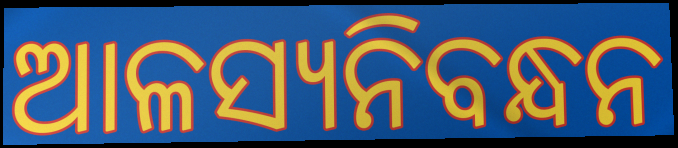
ଆଳସ୍ୟନିବନ୍ଧନ